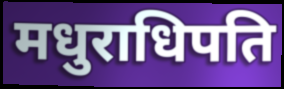
मधुराधिपति